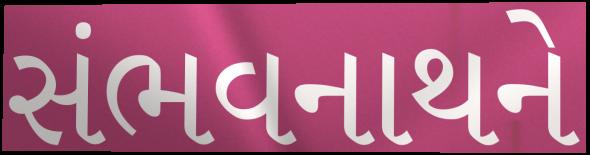
સંભવનાથને